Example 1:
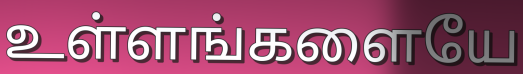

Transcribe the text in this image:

உள்ளங்களையே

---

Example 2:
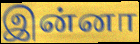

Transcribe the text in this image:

இன்னா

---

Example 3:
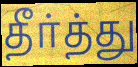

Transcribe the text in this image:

தீர்த்து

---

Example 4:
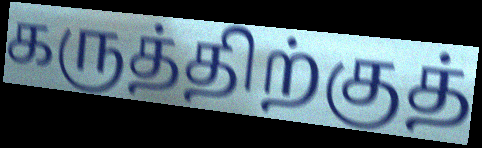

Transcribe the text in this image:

கருத்திற்குத்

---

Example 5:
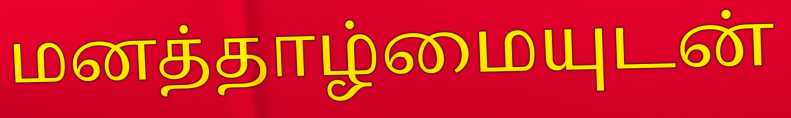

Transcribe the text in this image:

மனத்தாழ்மையுடன்